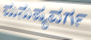
ಮನುಷ್ಯವರ್ಗ